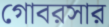
গোবরসার